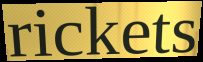
rickets